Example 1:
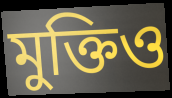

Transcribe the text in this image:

মুক্তিও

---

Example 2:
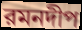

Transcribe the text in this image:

রমনদীপ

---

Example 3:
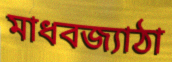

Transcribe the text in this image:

মাধবজ্যাঠা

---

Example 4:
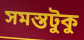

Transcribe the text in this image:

সমস্তটুকু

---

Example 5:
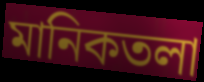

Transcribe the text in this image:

মানিকতলা